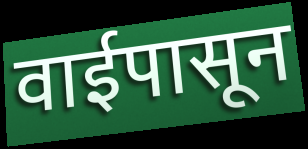
वाईपासून